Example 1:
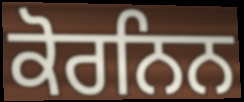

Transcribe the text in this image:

ਕੋਰਨਿਨ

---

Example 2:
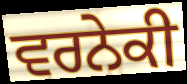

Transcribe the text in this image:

ਵਰਨੇਕੀ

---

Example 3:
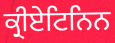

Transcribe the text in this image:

ਕ੍ਰੀਏਟਿਨਿਨ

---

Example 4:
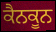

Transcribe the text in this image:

ਕੈਨਕੂਨ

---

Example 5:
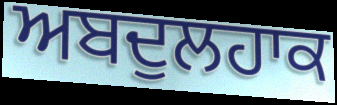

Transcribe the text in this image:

ਅਬਦੁਲਹਾਕ